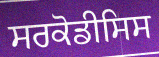
ਸਰਕੋਡੀਸਿਸ